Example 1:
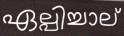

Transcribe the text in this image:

ഏല്പിച്ചാല്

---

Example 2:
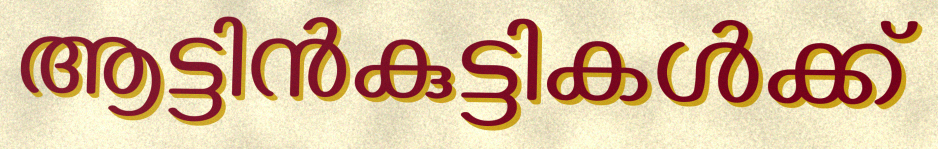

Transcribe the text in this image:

ആട്ടിൻകുട്ടികൾക്ക്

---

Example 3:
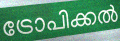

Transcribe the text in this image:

ട്രോപിക്കൽ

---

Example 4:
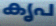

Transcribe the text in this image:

കൃപ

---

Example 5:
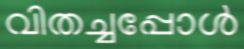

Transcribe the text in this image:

വിതച്ചപ്പോൾ